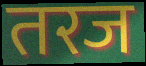
तरज